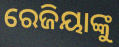
ରେଜିୟାଙ୍କୁ